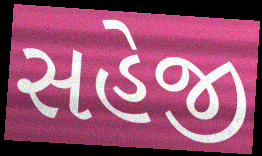
સહેજી